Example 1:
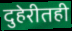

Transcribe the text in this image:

दुहेरीतही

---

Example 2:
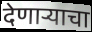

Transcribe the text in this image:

देणार्‍याचा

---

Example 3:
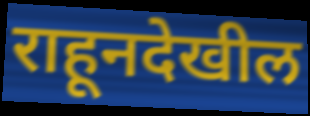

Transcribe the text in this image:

राहूनदेखील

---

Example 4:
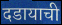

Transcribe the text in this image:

दडायाची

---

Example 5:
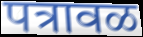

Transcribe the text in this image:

पत्रावळ